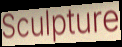
Sculpture